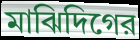
মাঝিদিগের